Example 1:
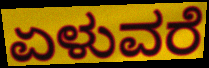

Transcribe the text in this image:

ಏಳುವರೆ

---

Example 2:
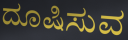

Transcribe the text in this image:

ದೂಷಿಸುವ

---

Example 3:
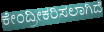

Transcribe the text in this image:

ಕೇಂದ್ರೀಕರಿಸಲಾಗಿದೆ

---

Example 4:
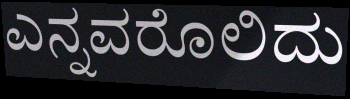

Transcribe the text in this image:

ಎನ್ನವರೊಲಿದು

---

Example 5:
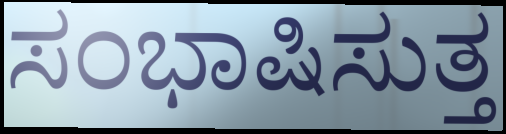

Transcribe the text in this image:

ಸಂಭಾಷಿಸುತ್ತ